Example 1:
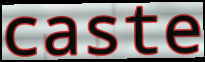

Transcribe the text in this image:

caste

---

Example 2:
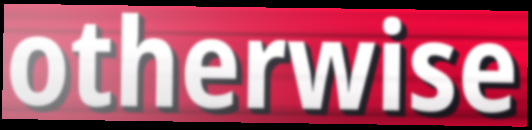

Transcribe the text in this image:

otherwise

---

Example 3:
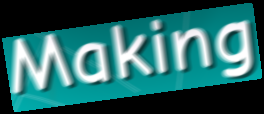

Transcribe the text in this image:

Making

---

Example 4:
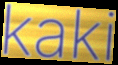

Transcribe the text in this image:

kaki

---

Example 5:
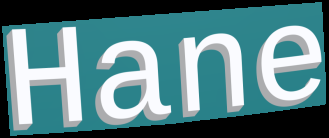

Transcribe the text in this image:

Hane